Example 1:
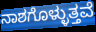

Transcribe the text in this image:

ನಾಶಗೊಳ್ಳುತ್ತವೆ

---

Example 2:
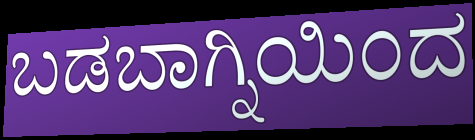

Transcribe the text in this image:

ಬಡಬಾಗ್ನಿಯಿಂದ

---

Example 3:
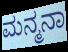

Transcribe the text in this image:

ಮನ್ಮನಾ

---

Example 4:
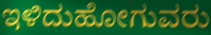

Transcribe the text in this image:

ಇಳಿದುಹೋಗುವರು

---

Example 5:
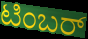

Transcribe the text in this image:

ಟಿಂಬರ್